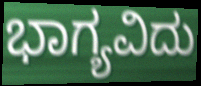
ಭಾಗ್ಯವಿದು